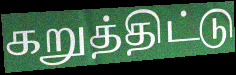
கறுத்திட்டு